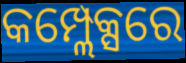
କମ୍ପ୍ଲେକ୍ସରେ